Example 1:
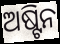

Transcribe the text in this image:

ଅଷ୍ଟିନ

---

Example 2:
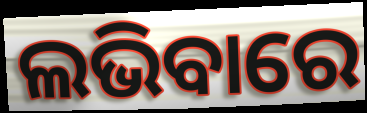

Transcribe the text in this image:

ଲଭିବାରେ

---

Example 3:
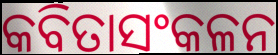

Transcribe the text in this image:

କବିତାସଂକଳନ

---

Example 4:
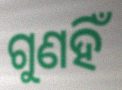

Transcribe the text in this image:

ଗୁଣହିଁ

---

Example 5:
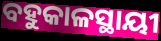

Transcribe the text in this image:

ବହୁକାଳସ୍ଥାୟୀ